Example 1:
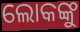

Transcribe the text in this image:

ଲୋକଙ୍କୁ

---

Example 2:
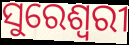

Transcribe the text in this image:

ସୁରେଶ୍ଵରୀ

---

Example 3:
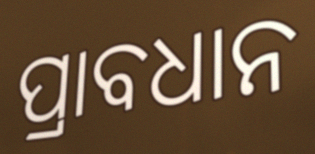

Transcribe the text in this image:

ପ୍ରାବଧାନ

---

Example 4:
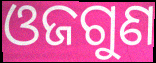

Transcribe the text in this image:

ଓଜଗୁଣ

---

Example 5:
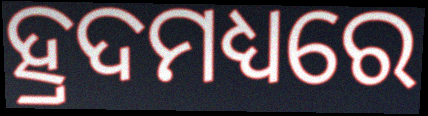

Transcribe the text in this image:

ହ୍ରଦମଧ୍ୟରେ